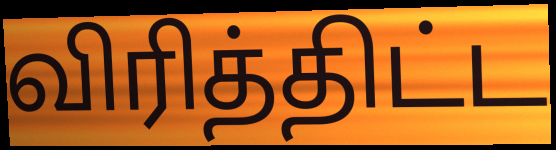
விரித்திட்ட